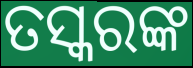
ତସ୍କରଙ୍କ